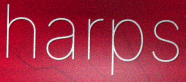
harps